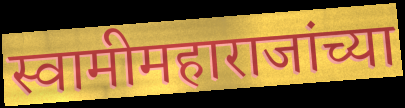
स्वामीमहाराजांच्या